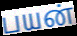
பயன்